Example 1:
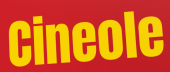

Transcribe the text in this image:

Cineole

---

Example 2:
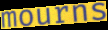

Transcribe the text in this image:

mourns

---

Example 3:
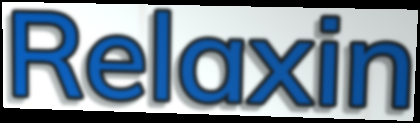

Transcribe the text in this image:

Relaxin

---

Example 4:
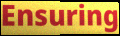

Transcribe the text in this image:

Ensuring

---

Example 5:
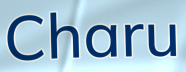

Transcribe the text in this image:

Charu